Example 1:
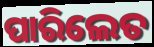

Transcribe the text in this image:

ପାରିଲେତ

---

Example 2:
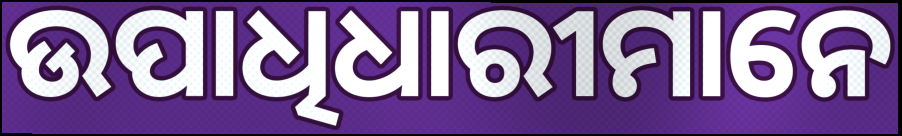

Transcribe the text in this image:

ଉପାଧିଧାରୀମାନେ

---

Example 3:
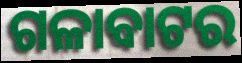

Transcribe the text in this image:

ଗଳାବାଟର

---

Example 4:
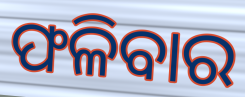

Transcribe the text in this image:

ଫଳିବାର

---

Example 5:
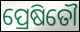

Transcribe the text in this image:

ପ୍ରେଷିତୌ